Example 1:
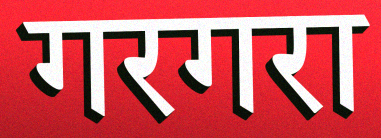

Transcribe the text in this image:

गरगरा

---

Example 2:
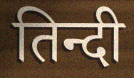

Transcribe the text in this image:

तिन्दी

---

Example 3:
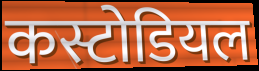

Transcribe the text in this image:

कस्टोडियल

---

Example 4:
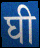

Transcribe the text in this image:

घी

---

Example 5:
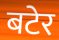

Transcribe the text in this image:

बटेर